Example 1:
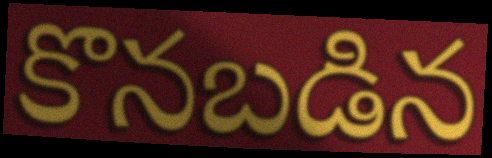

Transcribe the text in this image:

కొనబడిన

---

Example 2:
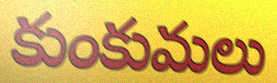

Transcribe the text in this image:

కుంకుమలు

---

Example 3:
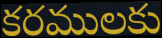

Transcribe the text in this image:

కరములకు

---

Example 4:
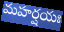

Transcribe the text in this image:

మహర్షయః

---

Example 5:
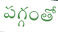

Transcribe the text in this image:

పగ్గంతో